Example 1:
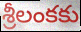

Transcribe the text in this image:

శ్రీలంకకు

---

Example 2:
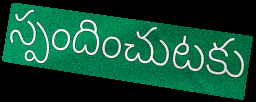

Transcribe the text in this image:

స్పందించుటకు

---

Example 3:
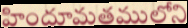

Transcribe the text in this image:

హిందూమతములోని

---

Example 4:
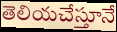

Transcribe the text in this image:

తెలియచేస్తూనే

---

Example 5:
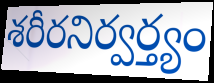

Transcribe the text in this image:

శరీరనిర్వర్త్యం